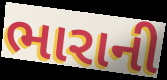
ભારાની